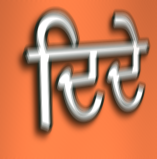
ਦਿਦੇ